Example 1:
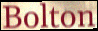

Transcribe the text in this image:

Bolton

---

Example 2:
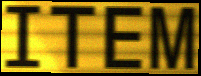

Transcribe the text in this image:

ITEM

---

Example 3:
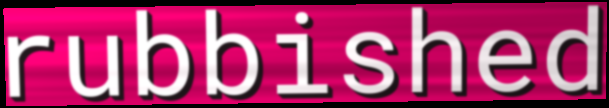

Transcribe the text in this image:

rubbished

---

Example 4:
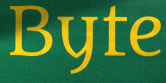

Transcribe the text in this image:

Byte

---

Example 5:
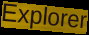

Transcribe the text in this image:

Explorer